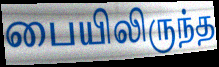
பையிலிருந்த